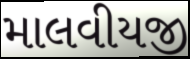
માલવીયજી